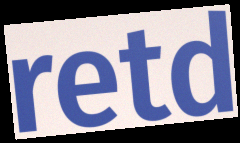
retd